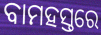
ବାମହସ୍ତରେ